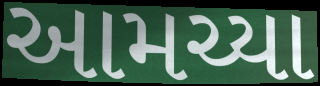
આમચ્યા